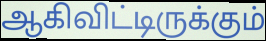
ஆகிவிட்டிருக்கும்